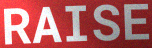
RAISE